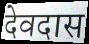
देवदास